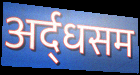
अर्द्धसम